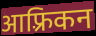
आफ़्रिकन